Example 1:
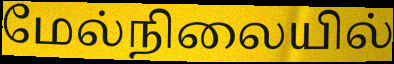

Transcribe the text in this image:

மேல்நிலையில்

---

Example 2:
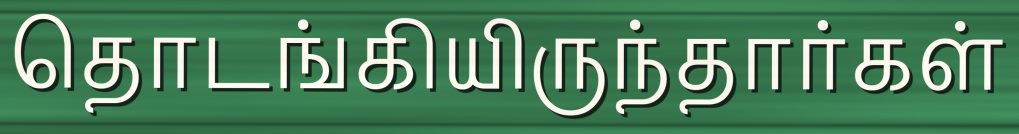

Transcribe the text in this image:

தொடங்கியிருந்தார்கள்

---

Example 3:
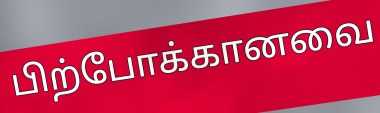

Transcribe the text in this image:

பிற்போக்கானவை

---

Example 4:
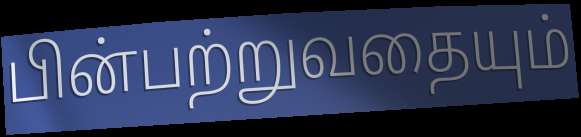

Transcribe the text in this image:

பின்பற்றுவதையும்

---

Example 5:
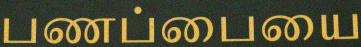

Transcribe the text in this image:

பணப்பையை